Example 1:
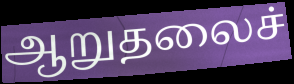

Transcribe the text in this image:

ஆறுதலைச்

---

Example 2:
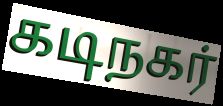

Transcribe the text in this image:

கடிநகர்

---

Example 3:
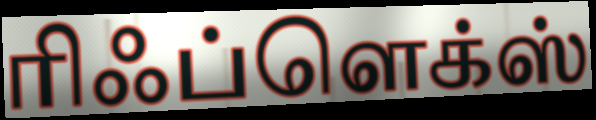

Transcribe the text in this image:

ரிஃப்ளெக்ஸ்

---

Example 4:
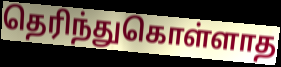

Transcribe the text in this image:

தெரிந்துகொள்ளாத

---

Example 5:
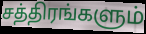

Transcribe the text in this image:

சத்திரங்களும்